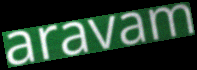
aravam